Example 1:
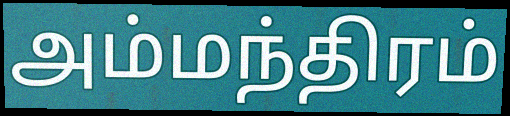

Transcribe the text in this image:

அம்மந்திரம்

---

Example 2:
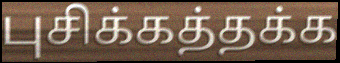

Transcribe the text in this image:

புசிக்கத்தக்க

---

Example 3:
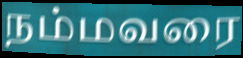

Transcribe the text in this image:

நம்மவரை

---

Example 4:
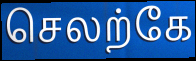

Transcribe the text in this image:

செலற்கே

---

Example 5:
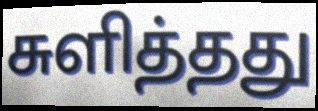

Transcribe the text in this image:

சுளித்தது